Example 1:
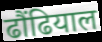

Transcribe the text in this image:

ढौंढियाल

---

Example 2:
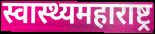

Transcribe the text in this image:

स्वास्थ्यमहाराष्ट्र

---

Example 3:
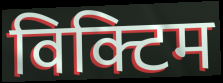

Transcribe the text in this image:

विक्टिम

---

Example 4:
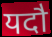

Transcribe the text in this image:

यदौ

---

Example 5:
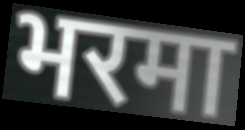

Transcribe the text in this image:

भरमा